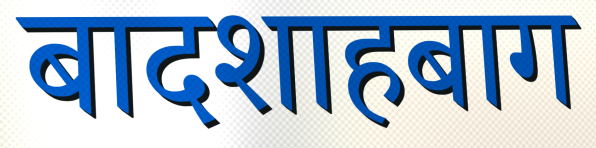
बादशाहबाग